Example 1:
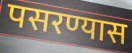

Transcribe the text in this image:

पसरण्यास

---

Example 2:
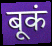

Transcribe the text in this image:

बूकं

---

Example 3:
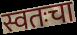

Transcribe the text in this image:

स्वतःचा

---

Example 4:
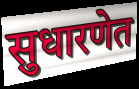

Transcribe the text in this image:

सुधारणेत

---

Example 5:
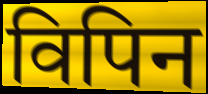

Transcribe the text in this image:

विपिन